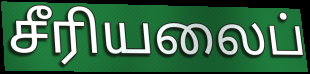
சீரியலைப்